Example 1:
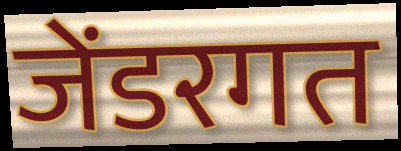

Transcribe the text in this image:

जेंडरगत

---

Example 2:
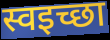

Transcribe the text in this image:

स्वइच्छा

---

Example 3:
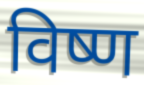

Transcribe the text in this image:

विष्ण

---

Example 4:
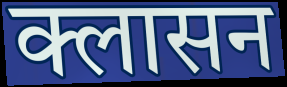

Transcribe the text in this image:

क्लासन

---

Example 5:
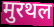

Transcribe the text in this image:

मुरथल